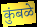
कुंबळे